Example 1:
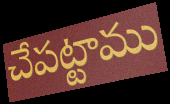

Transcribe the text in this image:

చేపట్టాము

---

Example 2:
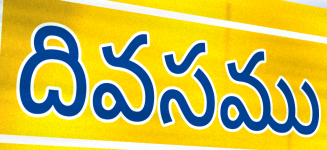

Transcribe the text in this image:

దివసము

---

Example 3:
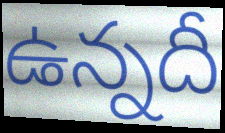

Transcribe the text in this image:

ఉన్నదీ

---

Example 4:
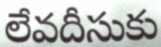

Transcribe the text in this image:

లేవదీసుకు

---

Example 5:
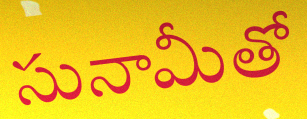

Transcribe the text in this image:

సునామీతో